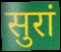
सुरां